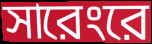
সারেংরে